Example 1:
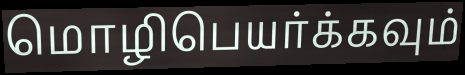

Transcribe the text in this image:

மொழிபெயர்க்கவும்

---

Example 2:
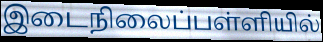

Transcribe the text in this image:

இடைநிலைப்பள்ளியில்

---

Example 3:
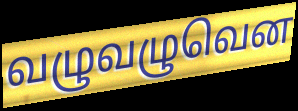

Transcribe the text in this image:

வழுவழுவென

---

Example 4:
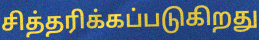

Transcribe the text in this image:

சித்தரிக்கப்படுகிறது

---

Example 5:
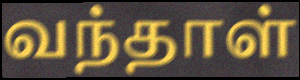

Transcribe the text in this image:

வந்தாள்